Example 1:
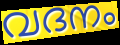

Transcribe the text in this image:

വദനം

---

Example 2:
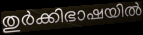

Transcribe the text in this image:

തുർക്കിഭാഷയിൽ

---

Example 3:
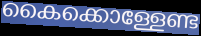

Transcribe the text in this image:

കൈക്കൊള്ളേണ്ട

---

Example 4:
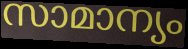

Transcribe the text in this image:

സാമാന്യം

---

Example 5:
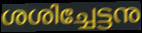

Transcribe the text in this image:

ശശിച്ചേട്ടനു